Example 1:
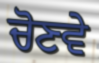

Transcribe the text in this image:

ਚੋਣਵੇ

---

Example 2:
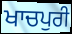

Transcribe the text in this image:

ਖਾਚਪੁਰੀ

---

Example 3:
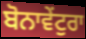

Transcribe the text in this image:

ਬੋਨਾਵੇਂਟੁਰਾ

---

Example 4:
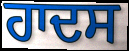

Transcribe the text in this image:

ਹਾਦਸ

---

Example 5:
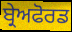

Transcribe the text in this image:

ਬ੍ਰੇਅਫੋਰਡ